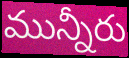
మున్నీరు